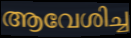
ആവേശിച്ച